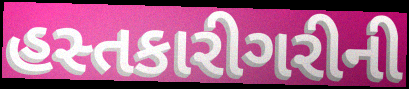
હસ્તકારીગરીની